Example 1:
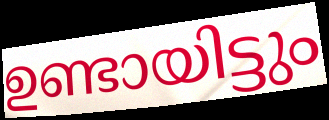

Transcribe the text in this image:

ഉണ്ടായിട്ടും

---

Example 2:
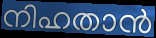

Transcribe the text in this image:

നിഹതാൻ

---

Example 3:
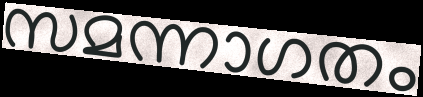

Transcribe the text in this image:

സമന്നാഗതം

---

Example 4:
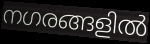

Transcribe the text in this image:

നഗരങ്ങളിൽ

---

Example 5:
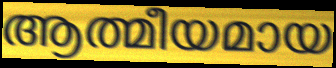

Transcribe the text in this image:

ആത്മീയമായ